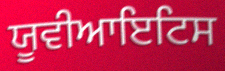
ਯੂਵੀਆਇਟਿਸ